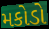
મકોડો